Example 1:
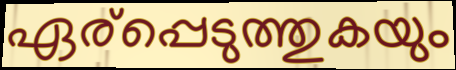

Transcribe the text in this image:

ഏര്പ്പെടുത്തുകയും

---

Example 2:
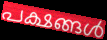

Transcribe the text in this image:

പക്ഷങ്ങൾ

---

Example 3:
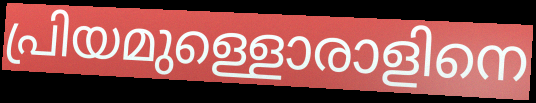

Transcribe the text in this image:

പ്രിയമുള്ളൊരാളിനെ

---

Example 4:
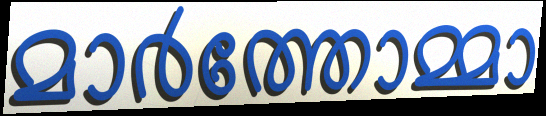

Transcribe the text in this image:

മാർത്തോമ്മാ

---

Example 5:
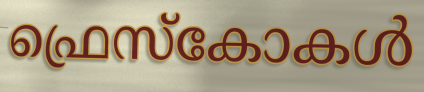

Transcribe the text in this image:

ഫ്രെസ്കോകൾ